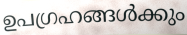
ഉപഗ്രഹങ്ങൾക്കും